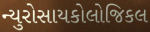
ન્યુરોસાયકોલોજિકલ